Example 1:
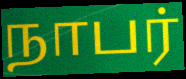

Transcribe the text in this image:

நாபர்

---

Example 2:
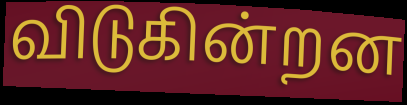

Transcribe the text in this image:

விடுகின்றன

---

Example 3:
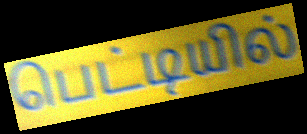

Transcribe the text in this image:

பெட்டியில்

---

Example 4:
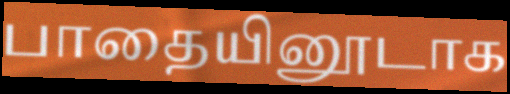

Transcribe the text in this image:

பாதையினூடாக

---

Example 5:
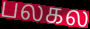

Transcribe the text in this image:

பலகல